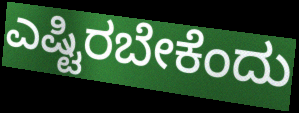
ಎಷ್ಟಿರಬೇಕೆಂದು